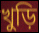
খুড়ি